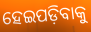
ହେଇପଡ଼ିବାକୁ